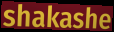
shakashe